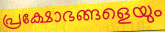
പ്രക്ഷോഭങ്ങളെയും